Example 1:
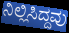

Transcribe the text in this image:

ನಿಲ್ಲಿಸಿದ್ದವು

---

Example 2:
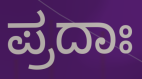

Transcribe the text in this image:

ಪ್ರದಾಃ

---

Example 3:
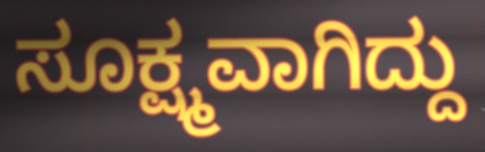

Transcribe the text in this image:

ಸೂಕ್ಷ್ಮವಾಗಿದ್ದು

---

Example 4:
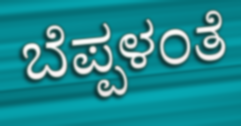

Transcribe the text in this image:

ಬೆಪ್ಪಳಂತೆ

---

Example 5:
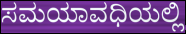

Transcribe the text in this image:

ಸಮಯಾವಧಿಯಲ್ಲಿ